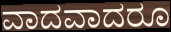
ವಾದವಾದರೂ